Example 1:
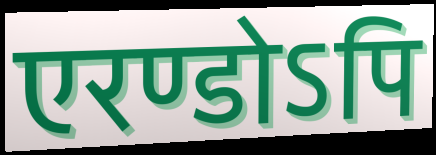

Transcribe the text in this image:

एरण्डोऽपि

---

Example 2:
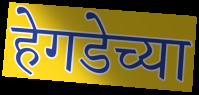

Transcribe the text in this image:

हेगडेच्या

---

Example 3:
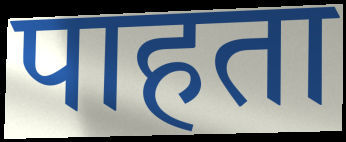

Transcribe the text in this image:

पाहता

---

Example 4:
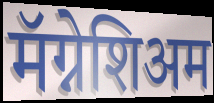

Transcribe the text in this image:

मॅग्नेशिअम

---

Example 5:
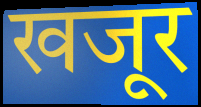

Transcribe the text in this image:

खजूर